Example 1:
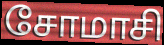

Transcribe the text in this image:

சோமாசி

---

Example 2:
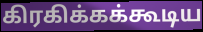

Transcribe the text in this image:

கிரகிக்கக்கூடிய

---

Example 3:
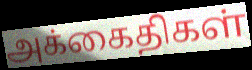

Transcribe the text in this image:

அக்கைதிகள்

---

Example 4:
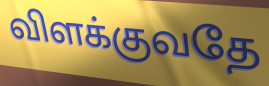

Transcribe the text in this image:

விளக்குவதே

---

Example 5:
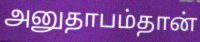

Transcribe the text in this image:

அனுதாபம்தான்